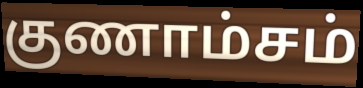
குணாம்சம்